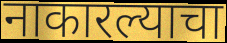
नाकारल्याचा